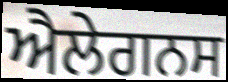
ਐਲੇਗਨਸ